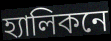
হ্যালিকনে